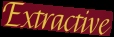
Extractive